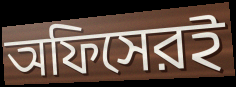
অফিসেরই